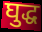
घुद्ध